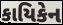
કાયિકેન